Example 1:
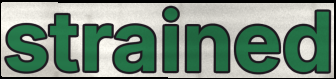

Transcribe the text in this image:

strained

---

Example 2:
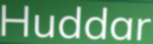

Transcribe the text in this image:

Huddar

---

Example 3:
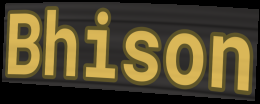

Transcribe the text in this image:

Bhison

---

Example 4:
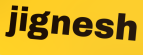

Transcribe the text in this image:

jignesh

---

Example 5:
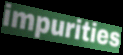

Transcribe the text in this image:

impurities